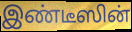
இண்டீஸின்